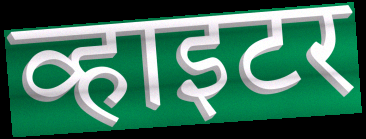
व्हाइटर